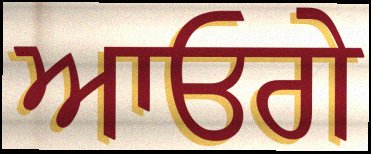
ਆਓਗੇ